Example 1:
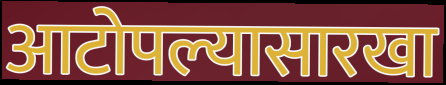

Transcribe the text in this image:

आटोपल्यासारखा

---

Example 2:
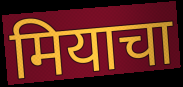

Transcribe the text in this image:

मियाचा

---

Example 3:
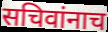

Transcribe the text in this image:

सचिवांनाच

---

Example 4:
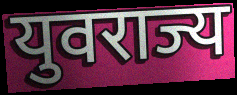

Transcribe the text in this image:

युवराज्य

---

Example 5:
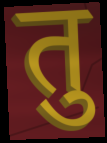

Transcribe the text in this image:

तु